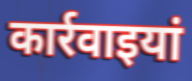
कार्रवाइयां